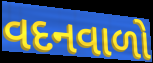
વદનવાળો